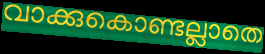
വാക്കുകൊണ്ടല്ലാതെ